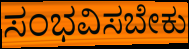
ಸಂಭವಿಸಬೇಕು